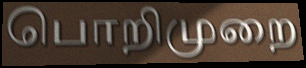
பொறிமுறை